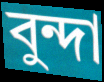
বুন্দা